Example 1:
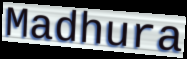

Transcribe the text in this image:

Madhura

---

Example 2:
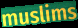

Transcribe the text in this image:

muslims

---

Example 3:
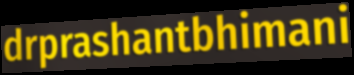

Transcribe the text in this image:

drprashantbhimani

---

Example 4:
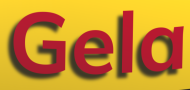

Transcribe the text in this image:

Gela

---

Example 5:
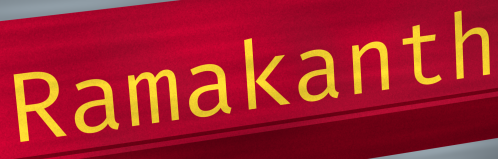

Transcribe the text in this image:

Ramakanth